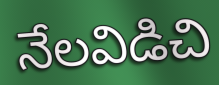
నేలవిడిచి